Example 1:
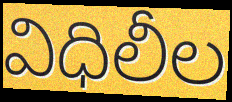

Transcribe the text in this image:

విధిలీల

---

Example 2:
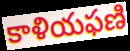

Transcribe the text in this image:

కాళియఫణి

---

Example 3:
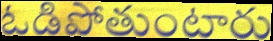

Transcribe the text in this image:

ఓడిపోతుంటారు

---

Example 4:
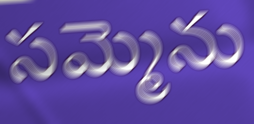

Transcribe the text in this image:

సమ్మెను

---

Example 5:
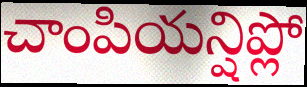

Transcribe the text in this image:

చాంపియన్షిప్లో